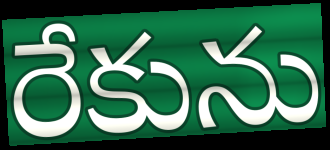
రేకును